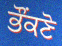
ਭੌਂਕਣੋ